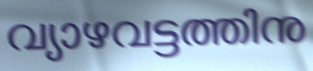
വ്യാഴവട്ടത്തിനു